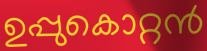
ഉപ്പുകൊറ്റൻ